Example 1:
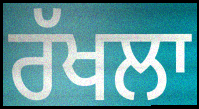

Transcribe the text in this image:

ਰੱਖਲਾ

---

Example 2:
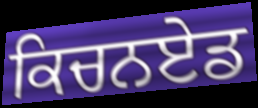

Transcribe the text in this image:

ਕਿਚਨਏਡ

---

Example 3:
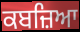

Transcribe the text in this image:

ਕਬਜ਼ਿਆ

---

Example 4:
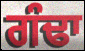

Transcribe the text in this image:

ਗੰਢਾ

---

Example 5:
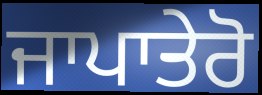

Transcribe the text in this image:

ਜਾਪਾਤੇਰੋ